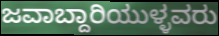
ಜವಾಬ್ದಾರಿಯುಳ್ಳವರು